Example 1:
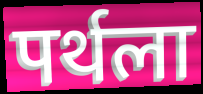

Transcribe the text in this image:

पर्थला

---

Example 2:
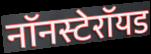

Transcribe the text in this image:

नॉनस्टेरॉयड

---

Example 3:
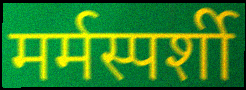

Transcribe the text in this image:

मर्मस्पर्शी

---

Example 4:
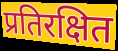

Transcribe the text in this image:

प्रतिरक्षित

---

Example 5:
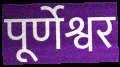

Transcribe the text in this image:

पूर्णेश्वर